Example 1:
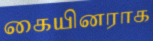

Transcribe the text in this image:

கையினராக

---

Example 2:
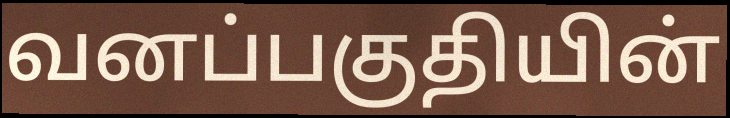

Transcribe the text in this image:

வனப்பகுதியின்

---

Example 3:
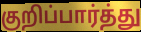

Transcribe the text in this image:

குறிப்பார்த்து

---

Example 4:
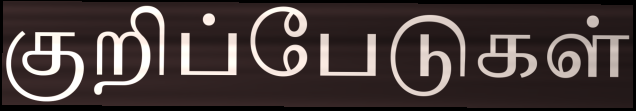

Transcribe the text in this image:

குறிப்பேடுகள்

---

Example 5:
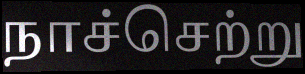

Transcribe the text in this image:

நாச்செற்று